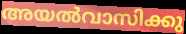
അയൽവാസിക്കു